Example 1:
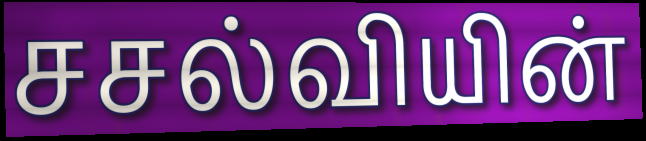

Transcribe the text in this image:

சசல்வியின்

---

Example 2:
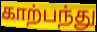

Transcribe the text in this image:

காற்பந்து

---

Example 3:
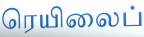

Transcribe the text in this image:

ரெயிலைப்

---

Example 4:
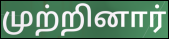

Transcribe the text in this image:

முற்றினார்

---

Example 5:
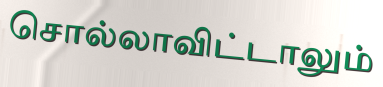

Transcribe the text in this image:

சொல்லாவிட்டாலும்